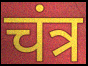
चंत्र